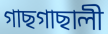
গাছগাছালী